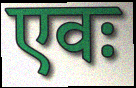
एवः